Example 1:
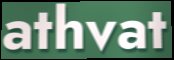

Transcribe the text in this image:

athvat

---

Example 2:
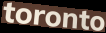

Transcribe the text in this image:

toronto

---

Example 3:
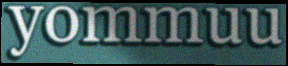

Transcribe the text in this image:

yommuu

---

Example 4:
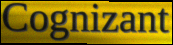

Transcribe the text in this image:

Cognizant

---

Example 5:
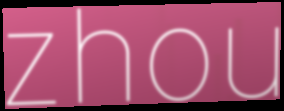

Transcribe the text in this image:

zhou